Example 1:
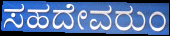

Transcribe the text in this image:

ಸಹದೇವರುಂ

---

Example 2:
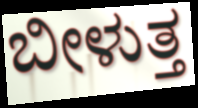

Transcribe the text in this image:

ಬೀಳುತ್ತ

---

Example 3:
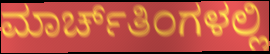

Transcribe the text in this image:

ಮಾರ್ಚ್‌ತಿಂಗಳಲ್ಲಿ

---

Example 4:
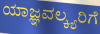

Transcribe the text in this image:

ಯಾಜ್ಞವಲ್ಕ್ಯರಿಗೆ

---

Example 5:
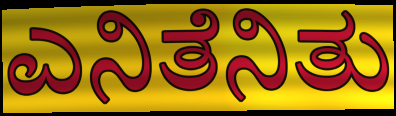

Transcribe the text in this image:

ಎನಿತೆನಿತು